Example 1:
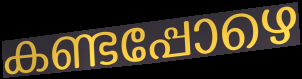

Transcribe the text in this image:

കണ്ടപ്പോഴെ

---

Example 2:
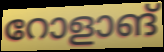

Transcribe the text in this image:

റോളാങ്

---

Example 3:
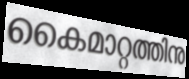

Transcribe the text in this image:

കൈമാറ്റത്തിനു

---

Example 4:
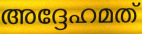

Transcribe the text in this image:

അദ്ദേഹമത്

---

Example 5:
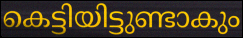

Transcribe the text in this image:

കെട്ടിയിട്ടുണ്ടാകും